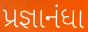
પ્રજ્ઞાનંધા